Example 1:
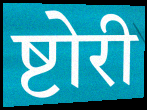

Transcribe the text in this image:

ष्टोरी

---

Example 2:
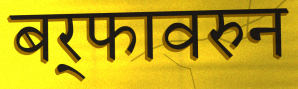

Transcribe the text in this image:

बर्फावरुन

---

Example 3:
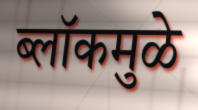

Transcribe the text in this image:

ब्लॉकमुळे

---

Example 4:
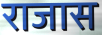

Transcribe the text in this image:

राजास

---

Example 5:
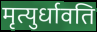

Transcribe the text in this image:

मृत्युर्धावति